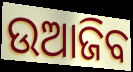
ଉଆଜିବ